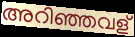
അറിഞ്ഞവള്